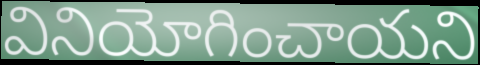
వినియోగించాయని